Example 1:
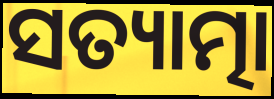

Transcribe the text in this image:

ସତ୍ୟାତ୍ମା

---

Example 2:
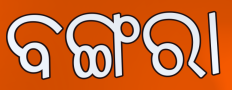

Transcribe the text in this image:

ବଙ୍ଗରା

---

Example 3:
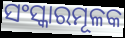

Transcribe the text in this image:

ସଂସ୍କାରମୂଳକ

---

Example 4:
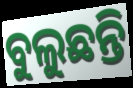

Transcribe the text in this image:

ବୁଲୁଛନ୍ତି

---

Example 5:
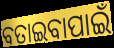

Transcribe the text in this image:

ବତାଇବାପାଇଁ